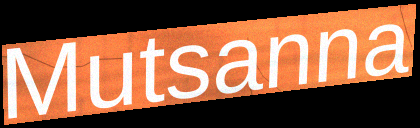
Mutsanna